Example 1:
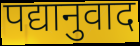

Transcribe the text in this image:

पद्यानुवाद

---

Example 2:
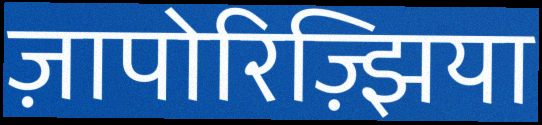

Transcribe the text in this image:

ज़ापोरिज़्झिया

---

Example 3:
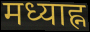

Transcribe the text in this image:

मध्याह्न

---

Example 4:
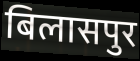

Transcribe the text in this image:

बिलासपुर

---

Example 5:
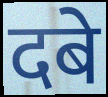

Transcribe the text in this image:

दबे